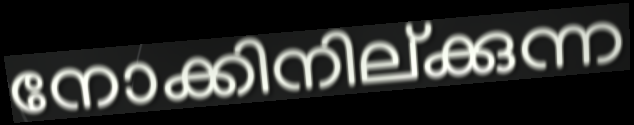
നോക്കിനില്ക്കുന്ന